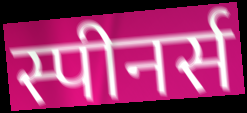
स्पीनर्स